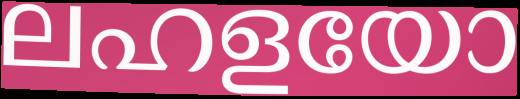
ലഹളയോ